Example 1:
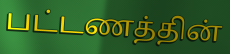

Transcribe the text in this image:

பட்டணத்தின்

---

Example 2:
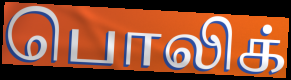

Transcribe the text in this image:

பொலிக்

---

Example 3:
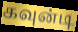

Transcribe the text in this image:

கவுன்டி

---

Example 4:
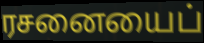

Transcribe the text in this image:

ரசனையைப்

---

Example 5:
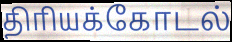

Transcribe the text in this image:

திரியக்கோடல்